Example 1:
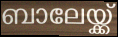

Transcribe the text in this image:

ബാലേയ്ക്ക്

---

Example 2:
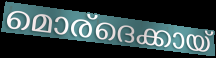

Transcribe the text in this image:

മൊര്ദെക്കായ്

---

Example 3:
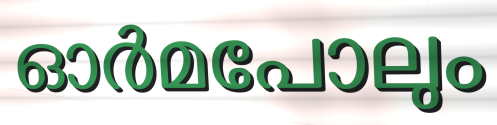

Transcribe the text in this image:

ഓർമപോലും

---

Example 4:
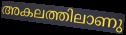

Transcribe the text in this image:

അകലത്തിലാണു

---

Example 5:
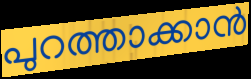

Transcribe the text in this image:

പുറത്താക്കാൻ